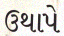
ઉથાપે